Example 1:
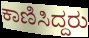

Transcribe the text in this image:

ಕಾಣಿಸಿದ್ದರು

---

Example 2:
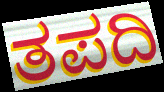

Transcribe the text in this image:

ತಪದಿ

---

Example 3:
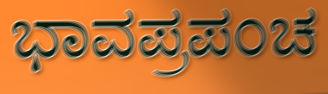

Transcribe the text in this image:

ಭಾವಪ್ರಪಂಚ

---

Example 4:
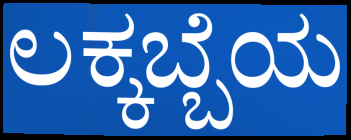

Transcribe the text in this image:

ಲಕ್ಕಬ್ಬೆಯ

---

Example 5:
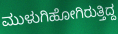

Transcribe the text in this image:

ಮುಳುಗಿಹೋಗಿರುತ್ತಿದ್ದ